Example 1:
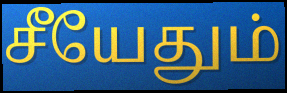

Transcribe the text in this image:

சீயேதும்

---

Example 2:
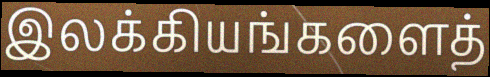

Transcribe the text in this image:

இலக்கியங்களைத்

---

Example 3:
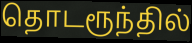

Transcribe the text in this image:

தொடரூந்தில்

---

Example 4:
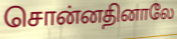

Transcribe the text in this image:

சொன்னதினாலே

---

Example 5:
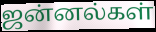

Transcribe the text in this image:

ஜன்னல்கள்